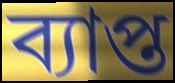
ব্যাপ্ত